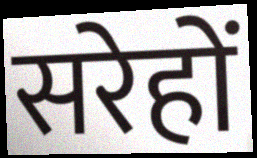
सरेहों